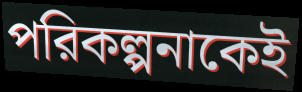
পরিকল্পনাকেই